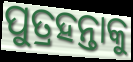
ପୁତ୍ରହନ୍ତାକୁ